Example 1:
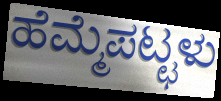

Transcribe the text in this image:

ಹೆಮ್ಮೆಪಟ್ಟಳು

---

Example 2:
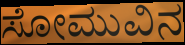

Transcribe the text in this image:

ಸೋಮುವಿನ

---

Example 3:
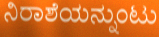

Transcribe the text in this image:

ನಿರಾಶೆಯನ್ನುಂಟು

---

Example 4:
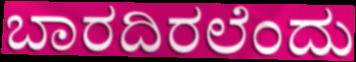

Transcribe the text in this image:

ಬಾರದಿರಲೆಂದು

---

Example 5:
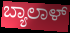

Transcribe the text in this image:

ಬ್ಯಾಲಾಳ್